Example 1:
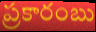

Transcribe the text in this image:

ప్రకారంబు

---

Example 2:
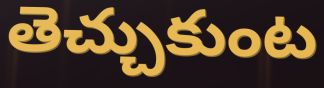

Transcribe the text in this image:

తెచ్చుకుంట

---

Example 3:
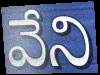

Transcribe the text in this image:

వేని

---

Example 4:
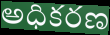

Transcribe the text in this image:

అధికరణ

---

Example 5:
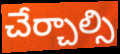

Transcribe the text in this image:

చేర్చాల్సి